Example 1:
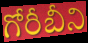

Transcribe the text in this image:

గోరీబీని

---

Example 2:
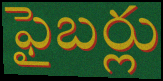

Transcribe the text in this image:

ఫైబర్లు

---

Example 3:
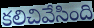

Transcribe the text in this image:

కలిచివేసింది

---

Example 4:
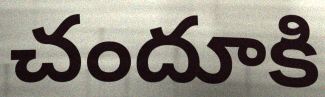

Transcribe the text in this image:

చందూకి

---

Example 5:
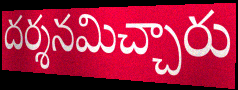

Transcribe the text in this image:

దర్శనమిచ్చారు